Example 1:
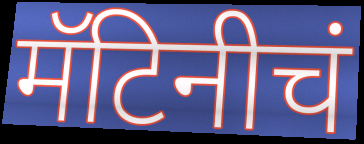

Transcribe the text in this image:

मॅटिनीचं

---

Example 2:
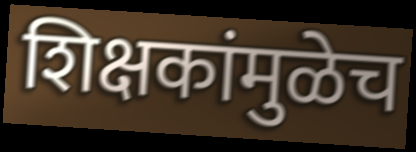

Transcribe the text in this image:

शिक्षकांमुळेच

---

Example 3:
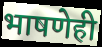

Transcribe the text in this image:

भाषणेही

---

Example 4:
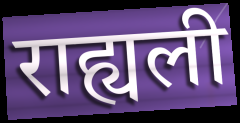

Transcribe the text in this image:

राह्यली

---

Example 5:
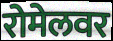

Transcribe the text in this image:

रोमेलवर